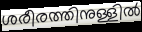
ശരീരത്തിനുള്ളിൽ